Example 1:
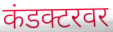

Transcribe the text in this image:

कंडक्टरवर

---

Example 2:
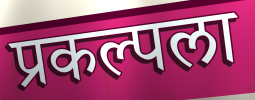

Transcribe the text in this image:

प्रकल्पला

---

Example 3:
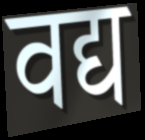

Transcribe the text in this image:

वद्य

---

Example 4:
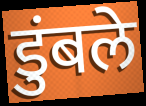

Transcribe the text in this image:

डुंबले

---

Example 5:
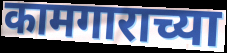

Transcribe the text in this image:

कामगाराच्या